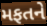
મફતને